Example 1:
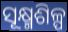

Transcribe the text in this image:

ସୂକ୍ଷ୍ମଶିଳ୍ପ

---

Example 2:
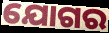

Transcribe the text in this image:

ଯୋଗର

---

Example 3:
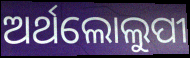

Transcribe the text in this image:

ଅର୍ଥଲୋଲୁପୀ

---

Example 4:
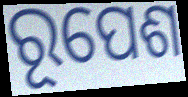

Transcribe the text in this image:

ରୂପେଶ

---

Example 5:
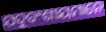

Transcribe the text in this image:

ଯଦୁବଂଶୀୟମାନେ